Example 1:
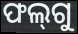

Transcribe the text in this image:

ଫଲ୍‌ଗୁ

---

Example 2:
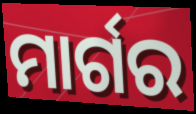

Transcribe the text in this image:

ମାର୍ଗର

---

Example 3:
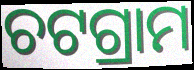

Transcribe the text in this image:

ଚଟଗ୍ରାମ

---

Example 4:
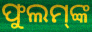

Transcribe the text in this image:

ଫୁଲମ୍‌ଙ୍କ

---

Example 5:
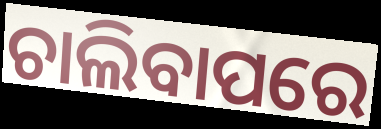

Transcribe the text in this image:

ଚାଲିବାପରେ